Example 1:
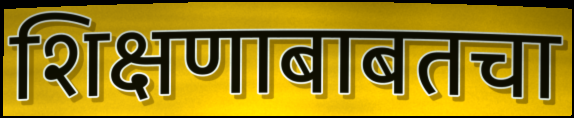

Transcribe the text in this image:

शिक्षणाबाबतचा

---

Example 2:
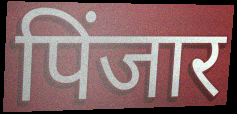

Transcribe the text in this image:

पिंजार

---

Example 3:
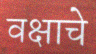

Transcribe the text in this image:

वक्षाचे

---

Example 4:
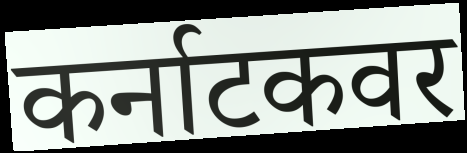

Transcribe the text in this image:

कर्नाटकवर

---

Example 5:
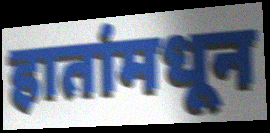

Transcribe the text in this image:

हातांमधून